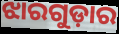
ଝାରଗୁଡ଼ାର